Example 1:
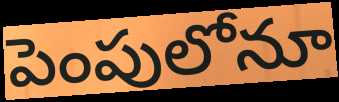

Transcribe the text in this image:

పెంపులోనూ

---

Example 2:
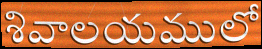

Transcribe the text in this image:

శివాలయములో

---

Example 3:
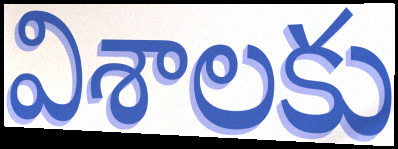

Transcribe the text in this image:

విశాలకు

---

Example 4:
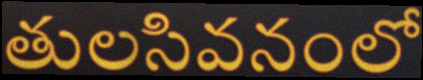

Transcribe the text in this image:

తులసివనంలో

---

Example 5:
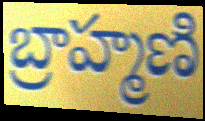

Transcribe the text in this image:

బ్రాహ్మణి